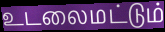
உடலைமட்டும்